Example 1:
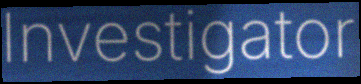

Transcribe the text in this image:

Investigator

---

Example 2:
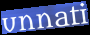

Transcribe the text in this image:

unnati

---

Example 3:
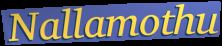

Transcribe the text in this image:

Nallamothu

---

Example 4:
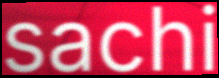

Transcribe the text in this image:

sachi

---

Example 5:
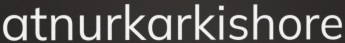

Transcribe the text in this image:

atnurkarkishore